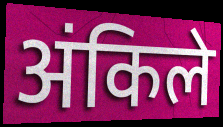
अंकिले